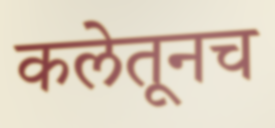
कलेतूनच